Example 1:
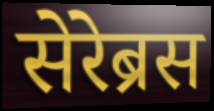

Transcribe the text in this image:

सेरेब्रस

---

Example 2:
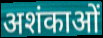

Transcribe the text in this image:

अशंकाओं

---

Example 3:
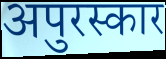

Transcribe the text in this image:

अपुरस्कार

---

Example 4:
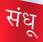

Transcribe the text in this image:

संधू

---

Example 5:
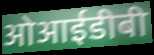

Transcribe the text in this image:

ओआईडीबी